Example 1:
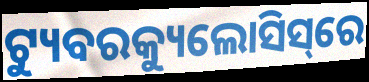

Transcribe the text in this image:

ଟ୍ୟୁବରକ୍ୟୁଲୋସିସ୍‌ରେ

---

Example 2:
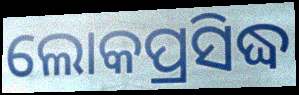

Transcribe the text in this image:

ଲୋକପ୍ରସିଦ୍ଧ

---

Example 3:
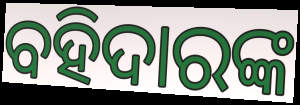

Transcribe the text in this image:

ବହିଦାରଙ୍କ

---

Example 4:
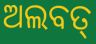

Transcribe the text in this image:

ଅଲବତ୍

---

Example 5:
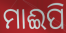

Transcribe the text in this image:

ମାଈପି